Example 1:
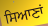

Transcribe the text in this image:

ਸਿਆਣਾਂ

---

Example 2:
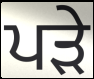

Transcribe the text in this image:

ਪੜੇ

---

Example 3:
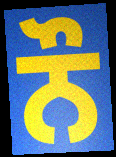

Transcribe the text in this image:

ਨੌ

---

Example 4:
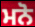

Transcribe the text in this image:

ਮਨੋ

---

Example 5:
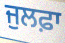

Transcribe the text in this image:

ਜੁਲਫ਼ਾ